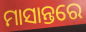
ମାସାନ୍ତରେ